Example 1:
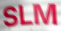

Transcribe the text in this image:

SLM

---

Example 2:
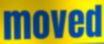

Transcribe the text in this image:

moved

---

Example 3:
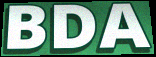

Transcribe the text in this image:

BDA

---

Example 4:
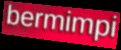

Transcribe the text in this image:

bermimpi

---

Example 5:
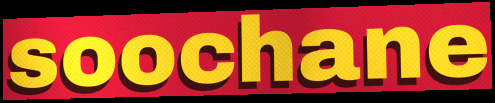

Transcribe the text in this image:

soochane